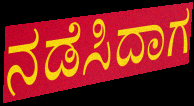
ನಡೆಸಿದಾಗ